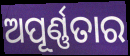
ଅପୂର୍ଣ୍ଣତାର